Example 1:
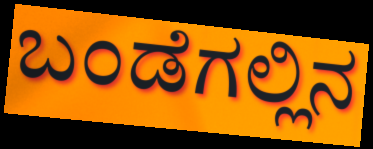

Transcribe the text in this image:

ಬಂಡೆಗಲ್ಲಿನ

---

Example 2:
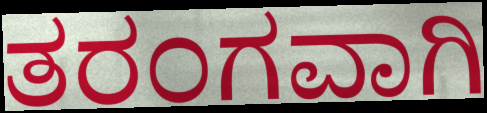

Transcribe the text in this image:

ತರಂಗವಾಗಿ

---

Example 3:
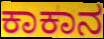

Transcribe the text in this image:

ಕಾಕಾನ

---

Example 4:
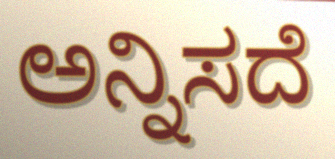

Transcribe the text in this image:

ಅನ್ನಿಸದೆ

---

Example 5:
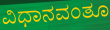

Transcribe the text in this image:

ವಿಧಾನವಂತೂ